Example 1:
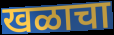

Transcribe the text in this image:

खळाचा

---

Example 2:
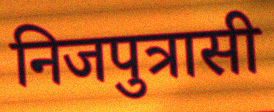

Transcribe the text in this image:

निजपुत्रासी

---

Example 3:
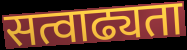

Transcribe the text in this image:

सत्वाढ्यता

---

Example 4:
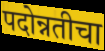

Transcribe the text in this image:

पदोन्नतीचा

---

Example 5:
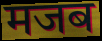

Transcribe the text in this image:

मजब